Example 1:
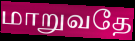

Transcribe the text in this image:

மாறுவதே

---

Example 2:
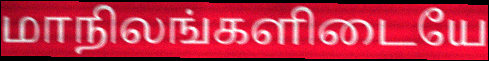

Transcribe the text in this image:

மாநிலங்களிடையே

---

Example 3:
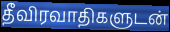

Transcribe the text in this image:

தீவிரவாதிகளுடன்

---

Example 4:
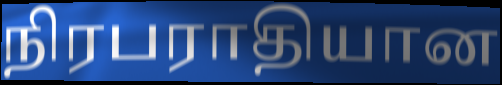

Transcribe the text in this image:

நிரபராதியான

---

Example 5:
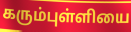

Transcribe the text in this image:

கரும்புள்ளியை